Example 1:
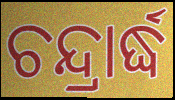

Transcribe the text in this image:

ଚନ୍ଦ୍ରାର୍ଦ୍ଧ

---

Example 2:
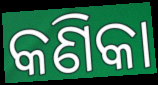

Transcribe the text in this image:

କଣିକା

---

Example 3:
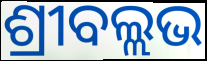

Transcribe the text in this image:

ଶ୍ରୀବଲ୍ଲଭ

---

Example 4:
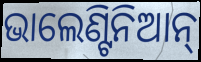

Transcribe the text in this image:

ଭାଲେଣ୍ଟିନିଆନ୍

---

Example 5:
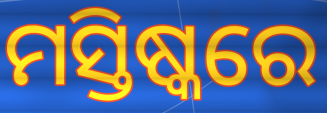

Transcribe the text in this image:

ମସ୍ତିଷ୍କରେ